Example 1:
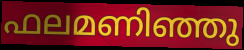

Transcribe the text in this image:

ഫലമണിഞ്ഞു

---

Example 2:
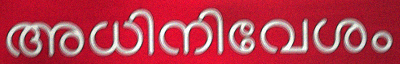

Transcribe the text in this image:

അധിനിവേശം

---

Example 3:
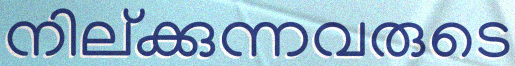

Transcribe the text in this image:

നില്ക്കുന്നവരുടെ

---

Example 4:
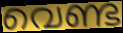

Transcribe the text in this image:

വെണ്ട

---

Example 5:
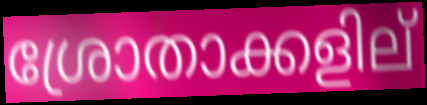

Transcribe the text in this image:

ശ്രോതാക്കളില്